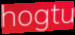
hogtu